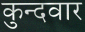
कुन्दवार